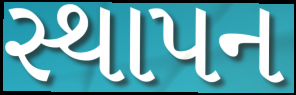
સ્થાપન